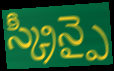
స్క్రీన్పై